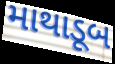
માથાડૂબ